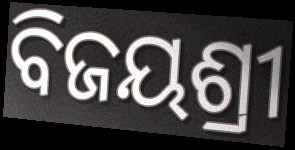
ବିଜୟଶ୍ରୀ